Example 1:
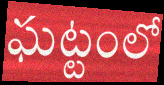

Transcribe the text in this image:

ఘట్టంలో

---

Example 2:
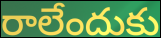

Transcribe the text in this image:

రాలేందుకు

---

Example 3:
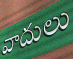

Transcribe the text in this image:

వాదులు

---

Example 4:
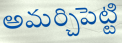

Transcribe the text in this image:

అమర్చిపెట్టి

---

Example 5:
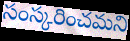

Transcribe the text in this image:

సంస్కరించమని